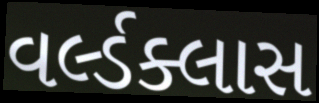
વર્લ્ડક્લાસ